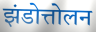
झंडोत्तोलन